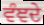
ਵੰਞਦੇ